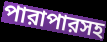
পারাপারসহ